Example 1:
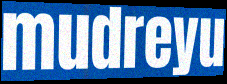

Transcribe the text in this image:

mudreyu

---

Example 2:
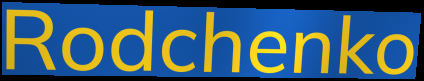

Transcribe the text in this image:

Rodchenko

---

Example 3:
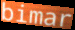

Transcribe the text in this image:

bimar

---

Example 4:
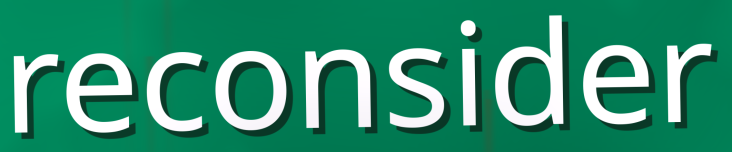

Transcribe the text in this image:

reconsider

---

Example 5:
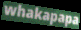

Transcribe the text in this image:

whakapapa